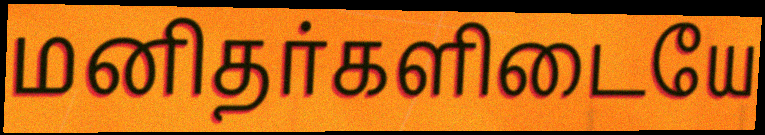
மனிதர்களிடையே